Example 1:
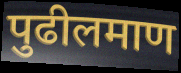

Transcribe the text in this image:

पुढीलमाण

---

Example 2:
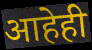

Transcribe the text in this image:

आहेही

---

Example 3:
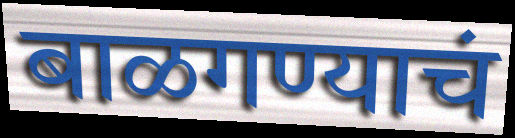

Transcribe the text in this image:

बाळगण्याचं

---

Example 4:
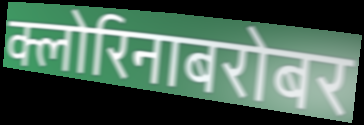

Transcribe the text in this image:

क्लोरिनाबरोबर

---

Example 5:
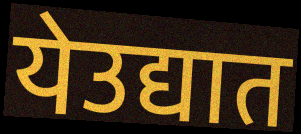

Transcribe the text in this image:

येउद्यात